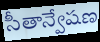
సీతాన్వేషణ